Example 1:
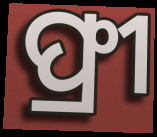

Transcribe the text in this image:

ଫ୍ରୀ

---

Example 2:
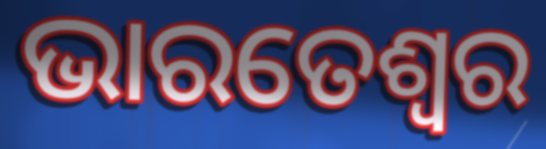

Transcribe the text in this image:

ଭାରତେଶ୍ୱର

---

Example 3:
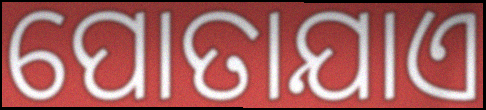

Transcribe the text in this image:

ପୋତାଯାଏ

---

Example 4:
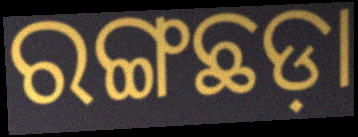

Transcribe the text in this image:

ରଙ୍ଗଛଡ଼ା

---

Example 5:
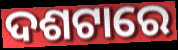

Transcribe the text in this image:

ଦଶଟାରେ